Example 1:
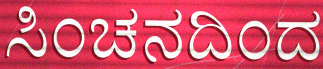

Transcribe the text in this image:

ಸಿಂಚನದಿಂದ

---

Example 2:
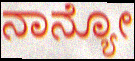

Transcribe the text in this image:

ನಾನ್ಯೋ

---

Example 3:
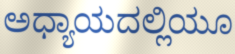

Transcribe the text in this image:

ಅಧ್ಯಾಯದಲ್ಲಿಯೂ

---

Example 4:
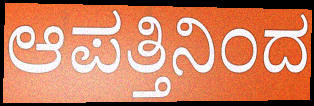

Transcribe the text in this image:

ಆಪತ್ತಿನಿಂದ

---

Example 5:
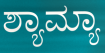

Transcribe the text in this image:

ಶ್ಯಾಮ್ಯಾ